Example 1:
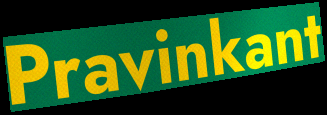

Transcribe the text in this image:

Pravinkant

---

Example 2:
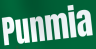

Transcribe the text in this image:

Punmia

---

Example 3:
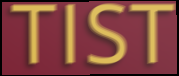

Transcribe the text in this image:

TIST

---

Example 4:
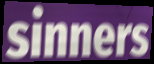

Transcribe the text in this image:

sinners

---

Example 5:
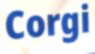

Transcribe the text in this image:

Corgi